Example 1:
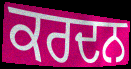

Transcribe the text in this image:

ਕਰਦਨ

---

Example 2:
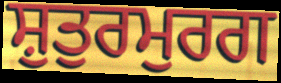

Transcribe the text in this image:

ਸ਼ੁਤੁਰਮੁਰਗ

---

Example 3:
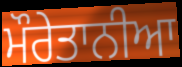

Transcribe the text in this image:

ਮੌਰੇਤਾਨੀਆ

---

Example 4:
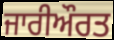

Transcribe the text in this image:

ਜਾਰੀਔਰਤ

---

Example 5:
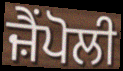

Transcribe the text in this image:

ਜ਼ੈਂਪੋਲੀ